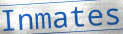
Inmates